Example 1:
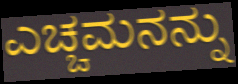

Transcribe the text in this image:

ಎಚ್ಚಮನನ್ನು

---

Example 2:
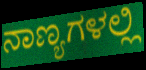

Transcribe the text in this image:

ನಾಣ್ಯಗಳಲ್ಲಿ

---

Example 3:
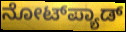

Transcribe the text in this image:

ನೋಟ್‌ಪ್ಯಾಡ್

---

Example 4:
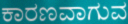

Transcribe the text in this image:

ಕಾರಣವಾಗುವ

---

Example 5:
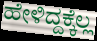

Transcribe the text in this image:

ಹೇಳಿದ್ದಕ್ಕೆಲ್ಲ